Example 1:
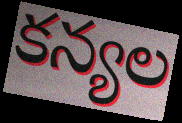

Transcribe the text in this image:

కన్యల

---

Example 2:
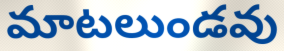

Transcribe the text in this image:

మాటలుండవు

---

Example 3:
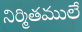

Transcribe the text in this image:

నిర్మితములే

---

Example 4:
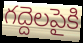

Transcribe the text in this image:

గద్దెలపైకి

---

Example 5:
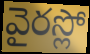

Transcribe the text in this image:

వైరస్లో